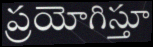
ప్రయోగిస్తూ